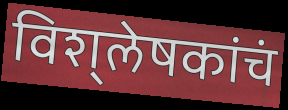
विश्लेषकांचं